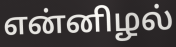
என்னிழல்